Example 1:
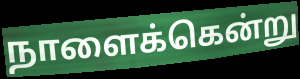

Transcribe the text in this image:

நாளைக்கென்று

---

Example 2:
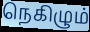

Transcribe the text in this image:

நெகிழும்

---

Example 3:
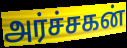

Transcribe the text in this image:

அர்ச்சகன்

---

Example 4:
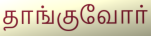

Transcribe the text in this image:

தாங்குவோர்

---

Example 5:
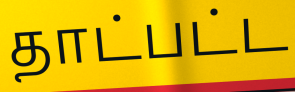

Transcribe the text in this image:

தாட்பட்ட